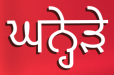
ਘਨ੍ਹੇੜੇ